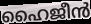
ഹൈജീൻ